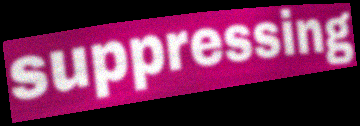
suppressing